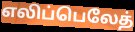
எலிப்பெலேத்